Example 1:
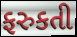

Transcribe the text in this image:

ફરુકતી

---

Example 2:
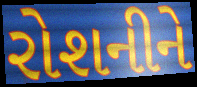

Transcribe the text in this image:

રોશનીને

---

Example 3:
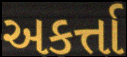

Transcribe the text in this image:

અકર્ત્તા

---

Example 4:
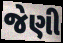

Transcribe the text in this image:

જેણી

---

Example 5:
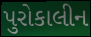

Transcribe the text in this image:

પુરોકાલીન